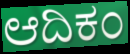
ಆದಿಕಂ